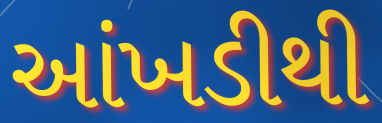
આંખડીથી